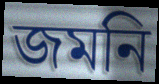
জমনি